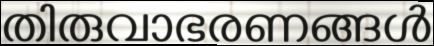
തിരുവാഭരണങ്ങൾ